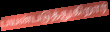
பயன்படுத்துகிறார்